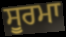
ਸੂਰਮਾ